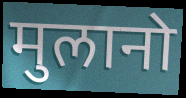
मुलानो